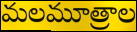
మలమూత్రాల